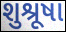
શુશ્રૂષા